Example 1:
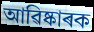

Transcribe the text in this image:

আৱিষ্কাৰক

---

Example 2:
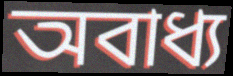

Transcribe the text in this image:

অবাধ্য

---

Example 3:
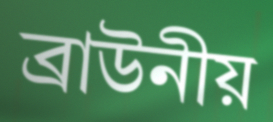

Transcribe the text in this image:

ব্ৰাউনীয়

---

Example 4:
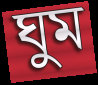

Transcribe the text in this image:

ঘুম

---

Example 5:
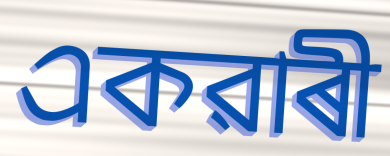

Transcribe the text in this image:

একৱাৰী